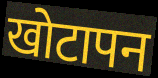
खोटापन